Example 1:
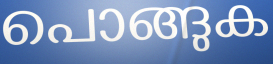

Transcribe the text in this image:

പൊങ്ങുക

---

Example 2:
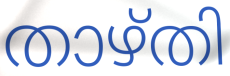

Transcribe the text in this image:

താഴ്തി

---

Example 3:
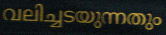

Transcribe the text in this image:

വലിച്ചടയുന്നതും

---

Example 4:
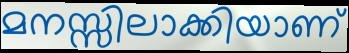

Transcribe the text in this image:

മനസ്സിലാക്കിയാണ്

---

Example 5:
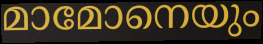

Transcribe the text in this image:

മാമോനെയും